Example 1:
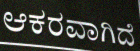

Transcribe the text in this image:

ಆಕರವಾಗಿದೆ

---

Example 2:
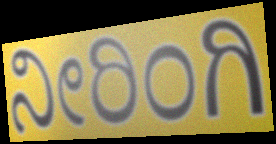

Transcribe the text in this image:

ನೀರಿಂಗಿ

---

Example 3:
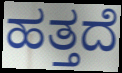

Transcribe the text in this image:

ಹತ್ತದೆ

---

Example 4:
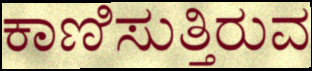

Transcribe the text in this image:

ಕಾಣಿಸುತ್ತಿರುವ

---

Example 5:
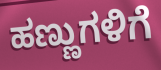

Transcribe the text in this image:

ಹಣ್ಣುಗಳಿಗೆ